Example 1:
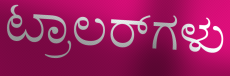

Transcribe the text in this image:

ಟ್ರಾಲರ್‌ಗಳು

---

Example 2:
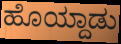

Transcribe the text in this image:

ಹೊಯ್ದಾಡು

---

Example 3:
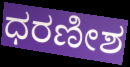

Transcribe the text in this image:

ಧರಣೀಶ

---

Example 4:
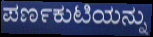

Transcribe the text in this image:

ಪರ್ಣಕುಟಿಯನ್ನು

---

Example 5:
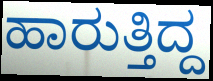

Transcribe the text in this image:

ಹಾರುತ್ತಿದ್ದ